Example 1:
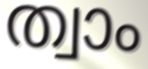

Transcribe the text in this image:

ത്വാം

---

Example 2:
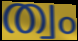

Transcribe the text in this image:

ത്വം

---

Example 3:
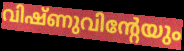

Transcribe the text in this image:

വിഷ്ണുവിന്റേയും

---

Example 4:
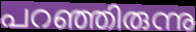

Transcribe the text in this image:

പറഞ്ഞിരുന്നു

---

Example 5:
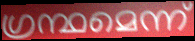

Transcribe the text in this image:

ഗ്രന്ഥമെന്ന്